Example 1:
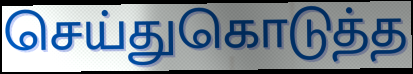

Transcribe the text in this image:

செய்துகொடுத்த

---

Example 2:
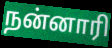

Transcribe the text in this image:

நன்னாரி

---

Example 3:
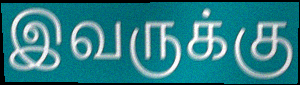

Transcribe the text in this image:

இவருக்கு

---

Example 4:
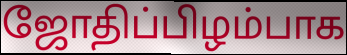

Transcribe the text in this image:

ஜோதிப்பிழம்பாக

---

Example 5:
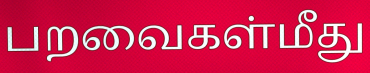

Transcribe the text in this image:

பறவைகள்மீது